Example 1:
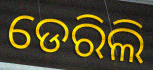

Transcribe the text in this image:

ଡେରିଲି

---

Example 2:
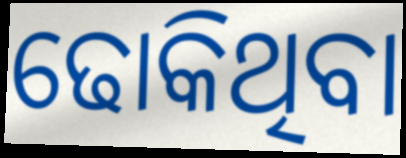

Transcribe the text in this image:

ଢୋକିଥିବା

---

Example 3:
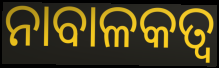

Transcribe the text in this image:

ନାବାଳକତ୍ଵ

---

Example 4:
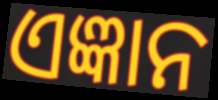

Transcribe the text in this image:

ଏଜ୍ଞାନ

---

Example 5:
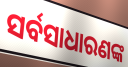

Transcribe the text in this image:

ସର୍ବସାଧାରଣଙ୍କ